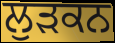
ਲੁੜਕਨ